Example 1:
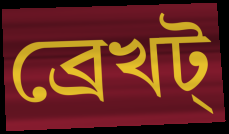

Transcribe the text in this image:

ব্রেখট্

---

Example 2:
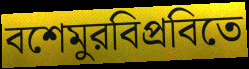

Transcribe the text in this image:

বশেমুরবিপ্রবিতে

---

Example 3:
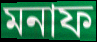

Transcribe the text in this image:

মনাফ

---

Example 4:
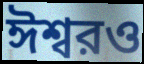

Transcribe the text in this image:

ঈশ্বরও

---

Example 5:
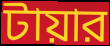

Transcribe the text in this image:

টায়ার